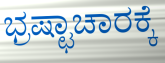
ಭ್ರಷ್ಟಾಚಾರಕ್ಕೆ